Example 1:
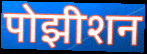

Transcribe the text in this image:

पोझीशन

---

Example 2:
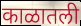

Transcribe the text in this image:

काळातली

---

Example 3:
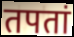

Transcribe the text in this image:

तपतां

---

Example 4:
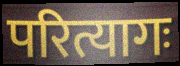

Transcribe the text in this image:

परित्यागः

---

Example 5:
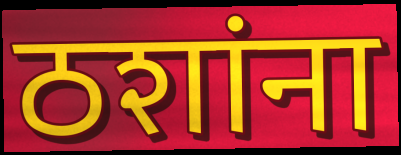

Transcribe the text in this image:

ठशांना